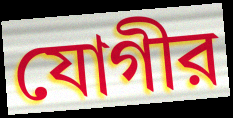
যোগীর